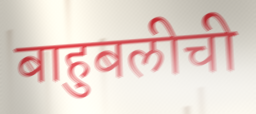
बाहुबलीची